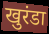
खुरंडा